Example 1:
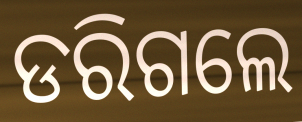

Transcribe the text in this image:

ଡରିଗଲେ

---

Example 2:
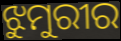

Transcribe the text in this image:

ଝୁମୁରୀର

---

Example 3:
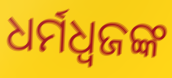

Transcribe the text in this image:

ଧର୍ମଧ୍ୱଜଙ୍କ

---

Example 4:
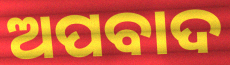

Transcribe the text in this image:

ଅପବାଦ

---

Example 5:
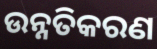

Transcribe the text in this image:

ଉନ୍ନତିକରଣ